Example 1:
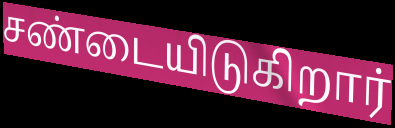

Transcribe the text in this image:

சண்டையிடுகிறார்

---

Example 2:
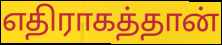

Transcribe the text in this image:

எதிராகத்தான்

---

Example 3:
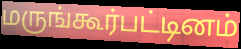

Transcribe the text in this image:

மருங்கூர்பட்டினம்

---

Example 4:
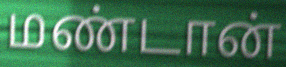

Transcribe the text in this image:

மண்டான்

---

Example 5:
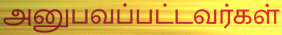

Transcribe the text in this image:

அனுபவப்பட்டவர்கள்